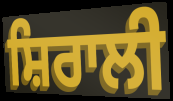
ਸ਼ਿਰਾਲੀ